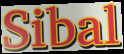
Sibal